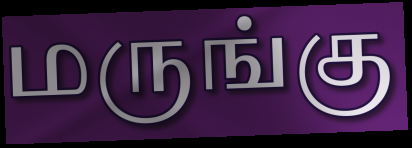
மருங்கு